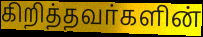
கிறித்தவர்களின்